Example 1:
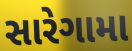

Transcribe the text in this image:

સારેગામા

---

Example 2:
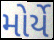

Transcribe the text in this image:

મોર્યે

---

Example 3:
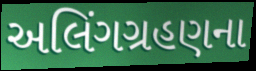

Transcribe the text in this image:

અલિંગગ્રહણના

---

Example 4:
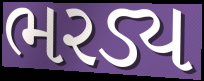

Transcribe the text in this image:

ભરડ્ય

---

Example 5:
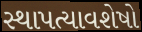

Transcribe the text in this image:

સ્થાપત્યાવશેષો